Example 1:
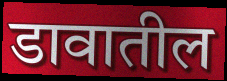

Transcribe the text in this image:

डावातील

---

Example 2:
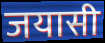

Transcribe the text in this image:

जयासी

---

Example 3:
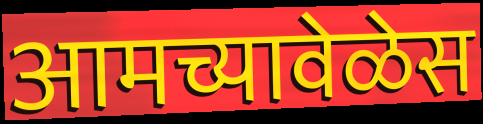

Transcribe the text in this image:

आमच्यावेळेस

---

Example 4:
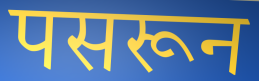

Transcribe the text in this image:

पसरून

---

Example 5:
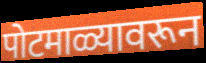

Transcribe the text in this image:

पोटमाळ्यावरून